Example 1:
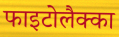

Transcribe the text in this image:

फाइटोलैक्का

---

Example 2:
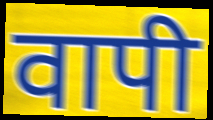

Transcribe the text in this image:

वापी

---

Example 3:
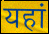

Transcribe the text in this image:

यहां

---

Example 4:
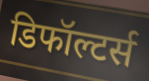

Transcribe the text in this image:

डिफॉल्टर्स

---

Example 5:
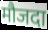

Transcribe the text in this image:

मौजदा